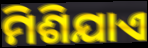
ମିଶିଯାଏ